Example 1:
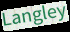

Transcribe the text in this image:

Langley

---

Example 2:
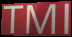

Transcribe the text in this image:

TMI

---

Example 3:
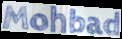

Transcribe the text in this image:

Mohbad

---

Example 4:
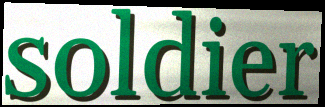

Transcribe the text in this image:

soldier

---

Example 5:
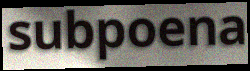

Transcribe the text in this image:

subpoena